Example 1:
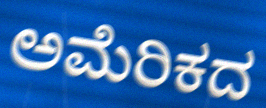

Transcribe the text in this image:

ಅಮೆರಿಕದ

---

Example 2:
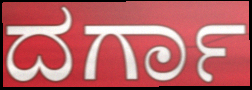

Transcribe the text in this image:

ದರ್ಗಾ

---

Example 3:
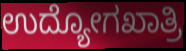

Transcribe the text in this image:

ಉದ್ಯೋಗಖಾತ್ರಿ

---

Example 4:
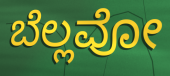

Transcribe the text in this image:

ಬೆಲ್ಲವೋ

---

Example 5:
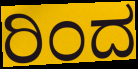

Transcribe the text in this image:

ರಿಂದ